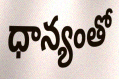
ధాన్యంతో